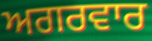
ਅਗਰਵਾਰ